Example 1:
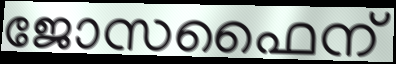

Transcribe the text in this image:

ജോസഫൈന്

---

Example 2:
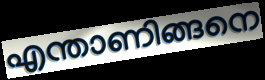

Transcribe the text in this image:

എന്താണിങ്ങനെ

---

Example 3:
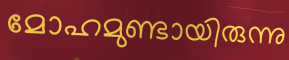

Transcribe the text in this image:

മോഹമുണ്ടായിരുന്നു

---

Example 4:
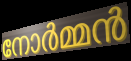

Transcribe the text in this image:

നോർമ്മൻ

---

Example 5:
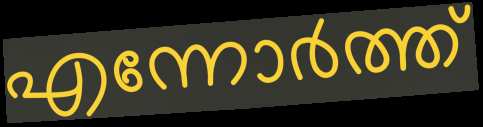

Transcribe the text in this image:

എന്നോർത്ത്